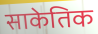
साकेतिक